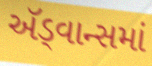
ઍડ્વાન્સમાં